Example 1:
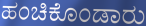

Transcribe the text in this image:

ಹಂಚಿಕೊಂಡಾರು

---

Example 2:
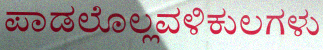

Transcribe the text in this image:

ಪಾಡಲೊಲ್ಲವಳಿಕುಲಗಳು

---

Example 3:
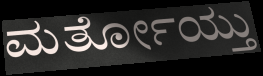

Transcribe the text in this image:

ಮರ್ತೋಯ್ತು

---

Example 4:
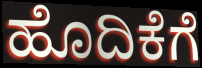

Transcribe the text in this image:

ಹೊದಿಕೆಗೆ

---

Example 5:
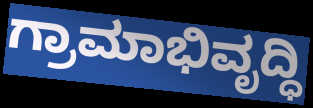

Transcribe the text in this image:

ಗ್ರಾಮಾಭಿವೃದ್ಧಿ